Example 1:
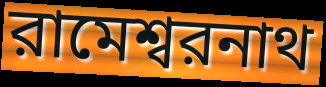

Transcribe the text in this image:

রামেশ্বরনাথ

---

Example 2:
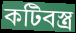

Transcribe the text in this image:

কটিবস্ত্র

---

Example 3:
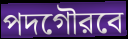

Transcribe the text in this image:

পদগৌরবে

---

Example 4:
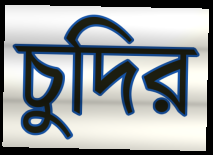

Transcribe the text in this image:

চুদির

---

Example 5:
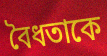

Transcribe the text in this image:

বৈধতাকে